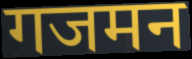
गजमन